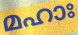
മഹാഃ